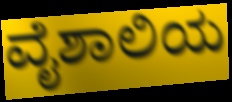
ವೈಶಾಲಿಯ